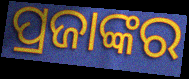
ପ୍ରଜାଙ୍କର